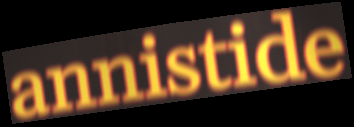
annistide